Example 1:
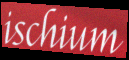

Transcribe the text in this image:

ischium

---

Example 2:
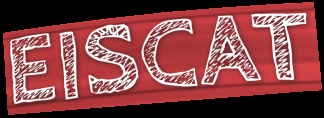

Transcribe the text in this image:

EISCAT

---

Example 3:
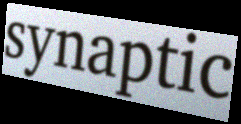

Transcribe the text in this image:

synaptic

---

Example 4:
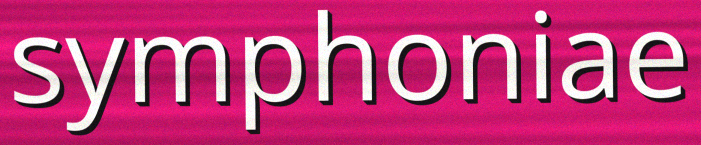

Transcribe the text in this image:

symphoniae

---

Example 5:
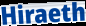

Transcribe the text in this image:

Hiraeth